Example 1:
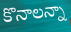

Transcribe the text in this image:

కొనాలన్నా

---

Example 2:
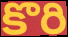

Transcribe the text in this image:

కొరి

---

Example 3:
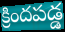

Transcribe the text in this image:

క్రిందపడ్డ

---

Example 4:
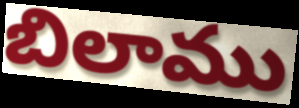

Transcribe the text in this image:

బిలాము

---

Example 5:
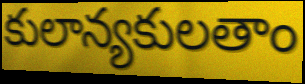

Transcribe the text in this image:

కులాన్యకులతాం